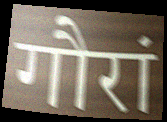
गौरां